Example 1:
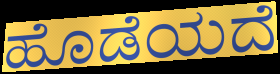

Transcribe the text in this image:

ಹೊಡೆಯದೆ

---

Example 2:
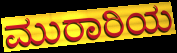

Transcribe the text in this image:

ಮುರಾರಿಯ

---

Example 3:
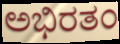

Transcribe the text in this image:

ಅಭಿರತಂ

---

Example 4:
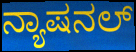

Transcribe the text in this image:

ನ್ಯಾಷನಲ್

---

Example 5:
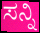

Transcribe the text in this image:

ಸನ್ನಿ